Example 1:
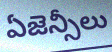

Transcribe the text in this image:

ఏజెన్సీలు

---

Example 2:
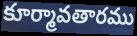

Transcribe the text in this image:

కూర్మావతారము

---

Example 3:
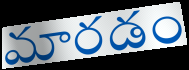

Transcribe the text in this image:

మారడం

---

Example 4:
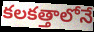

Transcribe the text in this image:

కలకత్తాలోనే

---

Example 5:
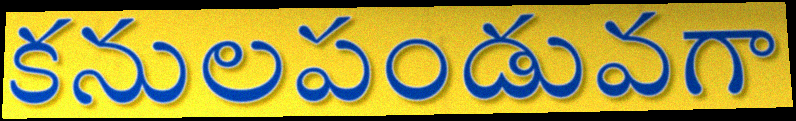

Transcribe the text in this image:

కనులపండువగా